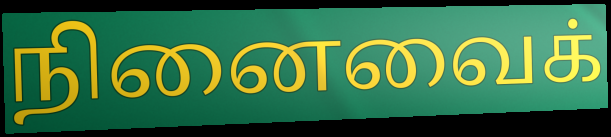
நினைவைக்